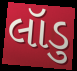
લૉડુ